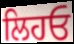
ਲਿਹਓ